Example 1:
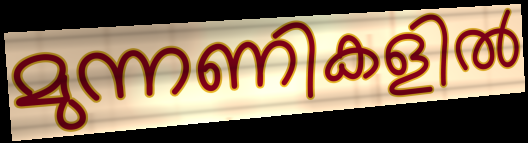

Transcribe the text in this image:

മുന്നണികളിൽ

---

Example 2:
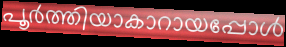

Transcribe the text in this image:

പൂർത്തിയാകാറായപ്പോൾ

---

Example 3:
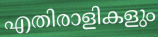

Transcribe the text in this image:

എതിരാളികളും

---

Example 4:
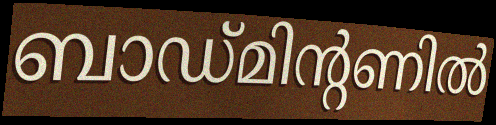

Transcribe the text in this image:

ബാഡ്മിന്റണിൽ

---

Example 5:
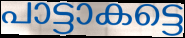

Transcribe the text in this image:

പാട്ടാകട്ടെ